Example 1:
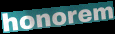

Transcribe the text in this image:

honorem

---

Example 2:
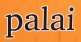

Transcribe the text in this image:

palai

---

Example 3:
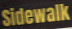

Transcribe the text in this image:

Sidewalk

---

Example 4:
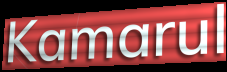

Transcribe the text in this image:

Kamarul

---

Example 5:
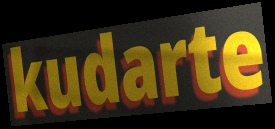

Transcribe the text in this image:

kudarte